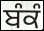
ਬੰਕੰ